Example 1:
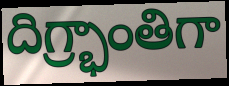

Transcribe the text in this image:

దిగ్ర్భాంతిగా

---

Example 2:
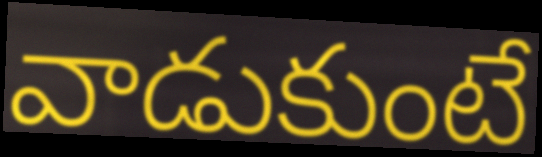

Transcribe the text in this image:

వాడుకుంటే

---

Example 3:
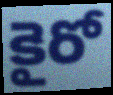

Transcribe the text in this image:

కైరో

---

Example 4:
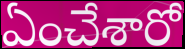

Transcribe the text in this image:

ఏంచేశారో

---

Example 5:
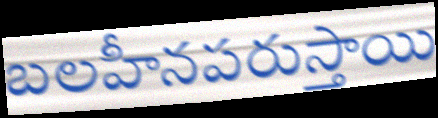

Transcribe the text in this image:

బలహీనపరుస్తాయి